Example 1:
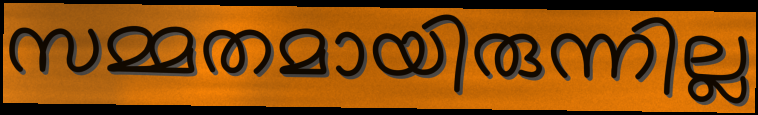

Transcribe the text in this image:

സമ്മതമായിരുന്നില്ല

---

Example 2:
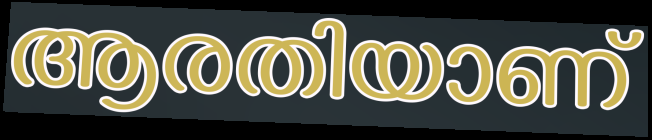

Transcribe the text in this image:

ആരതിയാണ്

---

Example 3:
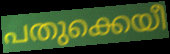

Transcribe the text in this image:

പതുക്കെയീ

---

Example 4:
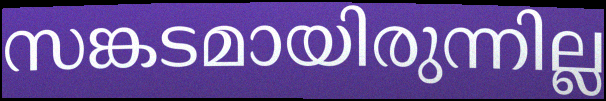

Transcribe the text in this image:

സങ്കടമായിരുന്നില്ല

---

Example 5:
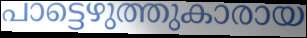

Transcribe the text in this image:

പാട്ടെഴുത്തുകാരായ